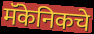
मॅकेनिकचे